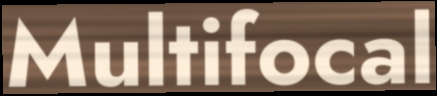
Multifocal